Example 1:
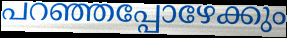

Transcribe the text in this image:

പറഞ്ഞപ്പോഴേക്കും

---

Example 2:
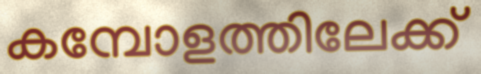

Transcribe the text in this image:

കമ്പോളത്തിലേക്ക്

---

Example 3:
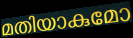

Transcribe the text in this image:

മതിയാകുമോ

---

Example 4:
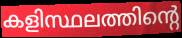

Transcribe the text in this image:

കളിസ്ഥലത്തിന്റെ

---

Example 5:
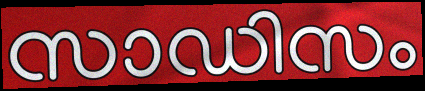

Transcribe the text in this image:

സാഡിസം